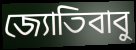
জ্যোতিবাবু